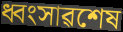
ধ্বংসাৱশেষ